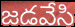
జడవేసి